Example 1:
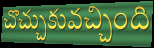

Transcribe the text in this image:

చొచ్చుకువచ్చింది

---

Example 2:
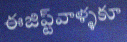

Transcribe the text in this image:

ఈజిప్ట్‌వాళ్ళకూ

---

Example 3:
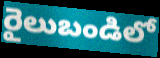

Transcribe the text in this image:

రైలుబండిలో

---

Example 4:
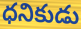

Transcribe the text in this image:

ధనికుడు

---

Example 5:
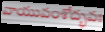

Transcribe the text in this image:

వాయువంశోద్భవః